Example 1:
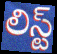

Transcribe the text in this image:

లిస్ట్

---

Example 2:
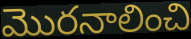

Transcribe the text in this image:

మొరనాలించి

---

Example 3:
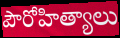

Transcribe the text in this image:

పౌరోహిత్యాలు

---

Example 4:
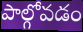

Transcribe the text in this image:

పాల్గోవడం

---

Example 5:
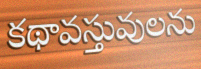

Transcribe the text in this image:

కథావస్తువులను